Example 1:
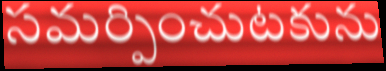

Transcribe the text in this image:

సమర్పించుటకును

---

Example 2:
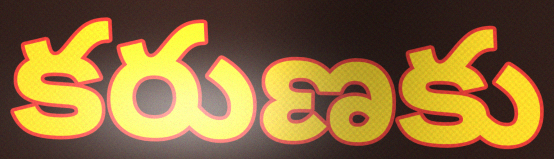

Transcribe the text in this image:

కరుణకు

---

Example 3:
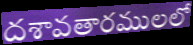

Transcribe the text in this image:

దశావతారములలో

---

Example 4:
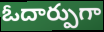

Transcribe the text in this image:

ఓదార్పుగా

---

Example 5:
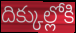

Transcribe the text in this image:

దిక్కుల్లోకి